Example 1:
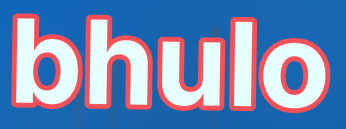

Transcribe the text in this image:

bhulo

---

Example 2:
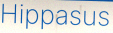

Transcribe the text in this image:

Hippasus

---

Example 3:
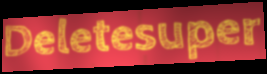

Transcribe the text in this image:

Deletesuper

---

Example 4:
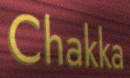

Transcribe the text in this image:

Chakka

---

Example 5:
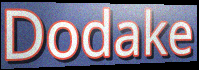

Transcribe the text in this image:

Dodake